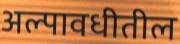
अल्पावधीतील